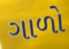
ગાળો